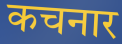
कचनार